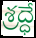
శ్రద్ధే